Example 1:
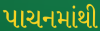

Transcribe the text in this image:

પાચનમાંથી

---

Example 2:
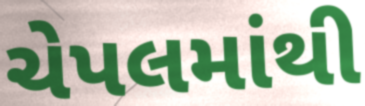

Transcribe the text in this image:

ચેપલમાંથી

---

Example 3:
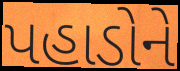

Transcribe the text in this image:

પહાડોને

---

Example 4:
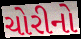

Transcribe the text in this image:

ચોરીનો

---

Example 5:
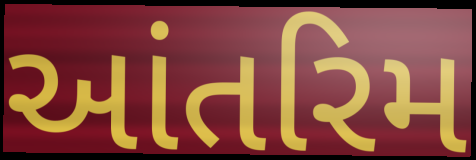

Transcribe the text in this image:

આંતરિમ